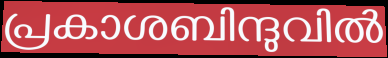
പ്രകാശബിന്ദുവിൽ